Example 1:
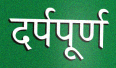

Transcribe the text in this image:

दर्पपूर्ण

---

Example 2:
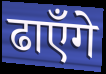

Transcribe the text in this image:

ढाएँगे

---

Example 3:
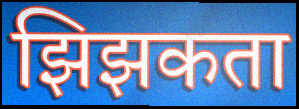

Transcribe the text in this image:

झिझकता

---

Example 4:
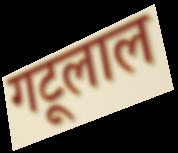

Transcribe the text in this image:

गटूलाल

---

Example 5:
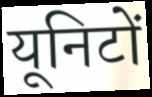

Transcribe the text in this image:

यूनिटों